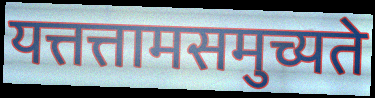
यत्तत्तामसमुच्यते